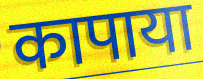
कापाया